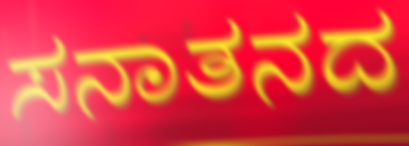
ಸನಾತನದ